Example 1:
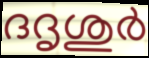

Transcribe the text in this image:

ദദൃശുർ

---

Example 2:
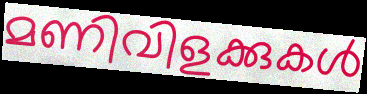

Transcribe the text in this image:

മണിവിളക്കുകൾ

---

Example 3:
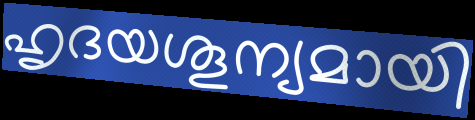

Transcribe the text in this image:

ഹൃദയശൂന്യമായി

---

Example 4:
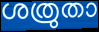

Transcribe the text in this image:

ശത്രുതാ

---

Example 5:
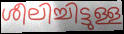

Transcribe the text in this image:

ശീലിച്ചിട്ടുള്ള